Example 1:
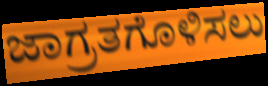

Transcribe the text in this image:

ಜಾಗ್ರತಗೊಳಿಸಲು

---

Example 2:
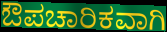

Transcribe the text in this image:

ಔಪಚಾರಿಕವಾಗಿ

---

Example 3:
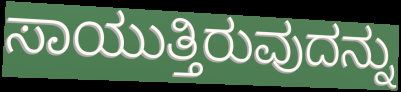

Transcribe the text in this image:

ಸಾಯುತ್ತಿರುವುದನ್ನು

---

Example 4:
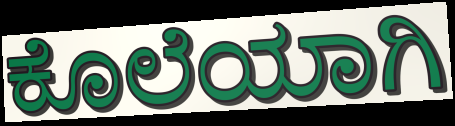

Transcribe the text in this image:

ಕೊಲೆಯಾಗಿ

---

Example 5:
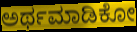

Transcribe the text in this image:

ಅರ್ಥಮಾಡಿಕೋ